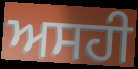
ਅਸਹੀ